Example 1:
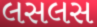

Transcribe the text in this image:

લસલસ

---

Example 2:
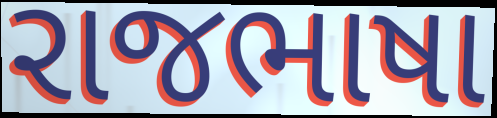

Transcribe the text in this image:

રાજભાષા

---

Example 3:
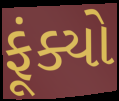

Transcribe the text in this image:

ફૂંક્યો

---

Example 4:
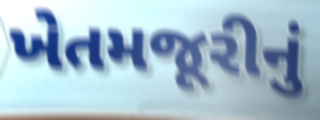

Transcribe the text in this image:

ખેતમજૂરીનું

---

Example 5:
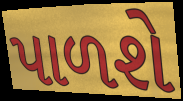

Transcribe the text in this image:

પાળશે